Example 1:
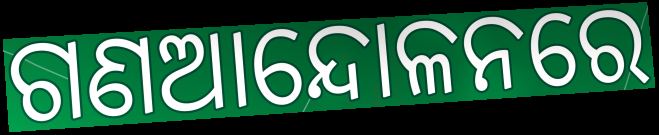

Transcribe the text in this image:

ଗଣଆନ୍ଦୋଳନରେ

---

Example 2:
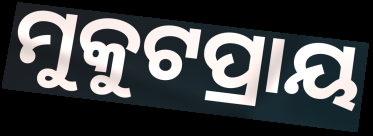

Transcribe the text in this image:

ମୁକୁଟପ୍ରାୟ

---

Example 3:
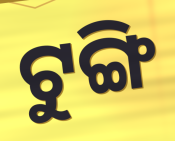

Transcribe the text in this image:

ଟୁଙ୍ଗି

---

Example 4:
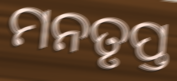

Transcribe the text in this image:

ମନତୃପ୍ତ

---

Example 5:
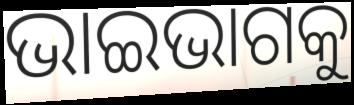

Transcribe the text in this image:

ଭାଇଭାଗକୁ